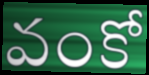
వంకో